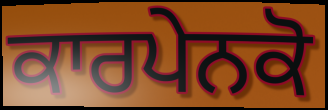
ਕਾਰਪੇਨਕੋ